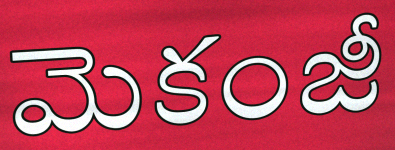
మెకంజీ